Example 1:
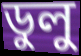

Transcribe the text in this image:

ডুলু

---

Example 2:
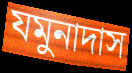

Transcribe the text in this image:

যমুনাদাস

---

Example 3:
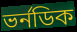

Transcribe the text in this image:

ভর্নডিক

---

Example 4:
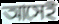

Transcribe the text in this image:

আসেই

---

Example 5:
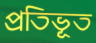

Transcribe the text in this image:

প্রতিভূত